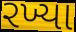
રખ્યા